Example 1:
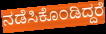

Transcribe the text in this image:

ನಡೆಸಿಕೊಂಡಿದ್ದರೆ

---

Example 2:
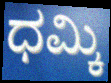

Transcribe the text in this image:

ಧಮ್ಕಿ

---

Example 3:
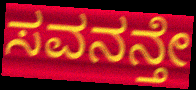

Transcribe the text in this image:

ಸವನನ್ತೇ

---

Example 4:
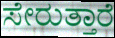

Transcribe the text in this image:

ಸೇರುತ್ತಾರೆ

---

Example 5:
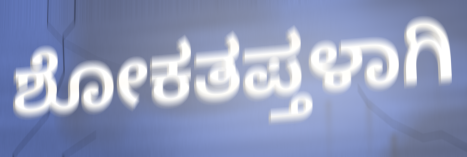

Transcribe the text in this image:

ಶೋಕತಪ್ತಳಾಗಿ